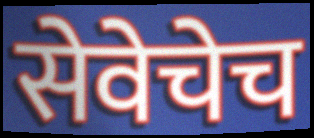
सेवेचेच